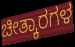
ಚೀತ್ಕಾರಗಳ